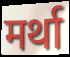
मर्था